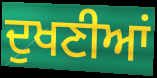
ਦੁਖਣੀਆਂ